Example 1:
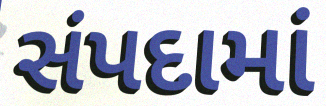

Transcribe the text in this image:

સંપદામાં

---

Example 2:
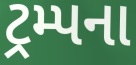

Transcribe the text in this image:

ટ્રમ્પના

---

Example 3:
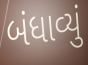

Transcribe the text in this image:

બંધાવ્યું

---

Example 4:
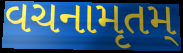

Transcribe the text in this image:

વચનામૃતમ્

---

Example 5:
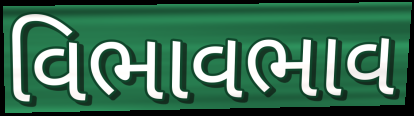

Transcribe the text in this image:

વિભાવભાવ